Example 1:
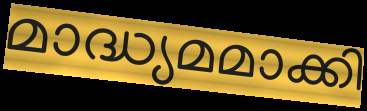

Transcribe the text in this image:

മാദ്ധ്യമമാക്കി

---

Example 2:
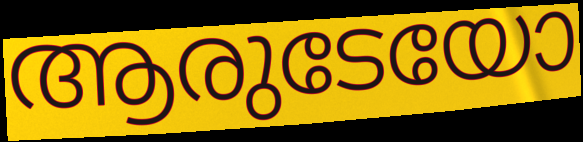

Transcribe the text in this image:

ആരുടേയോ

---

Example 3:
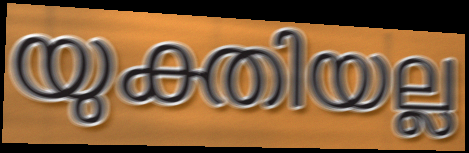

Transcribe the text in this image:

യുക്തിയല്ല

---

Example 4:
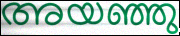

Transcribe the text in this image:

അയഞ്ഞു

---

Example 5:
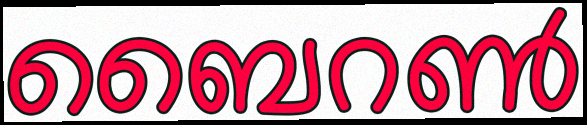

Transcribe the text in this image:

ബൈറൺ